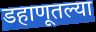
डहाणूतल्या